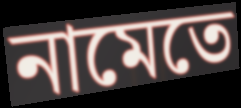
নামেতে